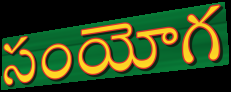
సంయోగ